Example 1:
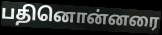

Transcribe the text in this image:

பதினொன்னரை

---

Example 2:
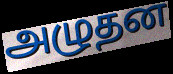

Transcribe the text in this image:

அழுதன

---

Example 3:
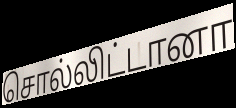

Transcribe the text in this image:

சொல்லிட்டானா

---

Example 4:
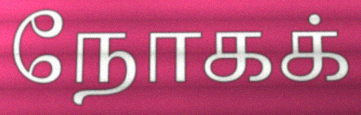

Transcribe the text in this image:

நோகக்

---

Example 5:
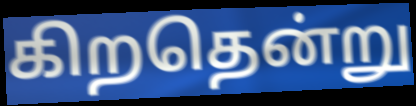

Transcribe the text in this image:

கிறதென்று